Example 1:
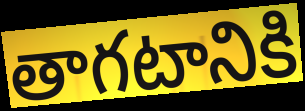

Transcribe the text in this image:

తాగటానికి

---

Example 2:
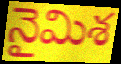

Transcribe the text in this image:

నైమిశ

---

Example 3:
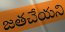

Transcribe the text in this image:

జతచేయని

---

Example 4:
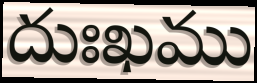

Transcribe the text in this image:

దుఃఖము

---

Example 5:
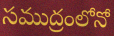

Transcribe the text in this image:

సముద్రంలోనో